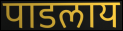
पाडलाय